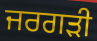
ਜਰਗੜੀ